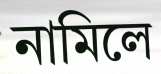
নামিলে